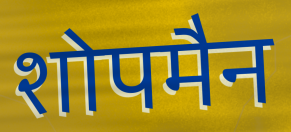
शोपमैन